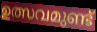
ഉത്സവമുണ്ട്